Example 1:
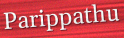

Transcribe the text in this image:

Parippathu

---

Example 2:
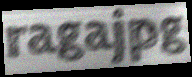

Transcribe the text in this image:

ragajpg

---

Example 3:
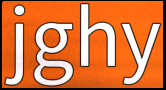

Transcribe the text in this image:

jghy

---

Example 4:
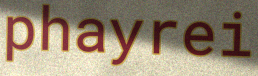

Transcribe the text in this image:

phayrei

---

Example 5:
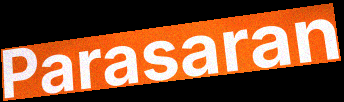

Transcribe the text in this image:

Parasaran